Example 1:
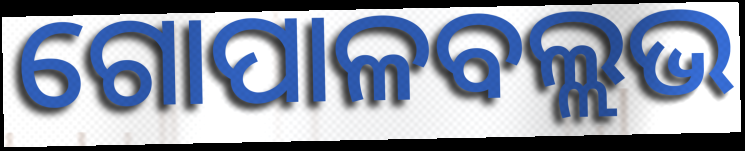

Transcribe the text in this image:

ଗୋପାଳବଲ୍ଲଭ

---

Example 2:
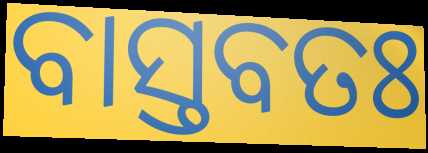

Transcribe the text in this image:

ବାସ୍ତବତଃ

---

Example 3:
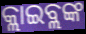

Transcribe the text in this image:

କ୍ଲାଇବ୍ଲଙ୍କ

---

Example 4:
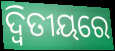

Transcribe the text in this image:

ଦ୍ଵିତୀୟରେ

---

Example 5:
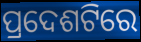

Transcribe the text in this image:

ପ୍ରଦେଶଟିରେ